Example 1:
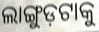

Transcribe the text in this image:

ଲାଙ୍ଗୁଡ଼ଟାକୁ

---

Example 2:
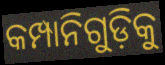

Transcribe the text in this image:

କମ୍ପାନିଗୁଡ଼ିକୁ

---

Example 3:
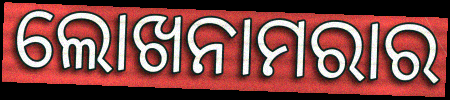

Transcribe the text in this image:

ଲୋଖନାମରାର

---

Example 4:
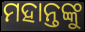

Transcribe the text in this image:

ମହାନ୍ତଙ୍କୁ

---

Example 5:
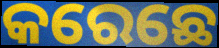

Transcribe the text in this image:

କରେଛେ